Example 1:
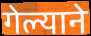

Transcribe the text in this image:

गेल्याने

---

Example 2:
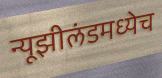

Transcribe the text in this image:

न्यूझीलंडमध्येच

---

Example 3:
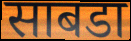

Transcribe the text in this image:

साबडा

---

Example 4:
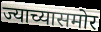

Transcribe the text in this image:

ज्याच्यासमोर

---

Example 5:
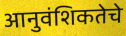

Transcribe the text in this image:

आनुवंशिकतेचे